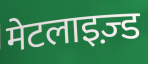
मेटलाइज़्ड